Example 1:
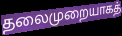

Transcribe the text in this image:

தலைமுறையாகத்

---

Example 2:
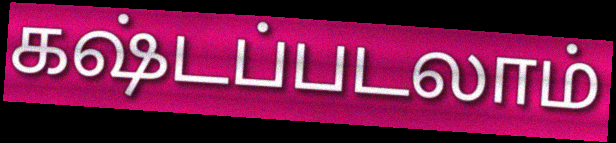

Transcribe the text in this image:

கஷ்டப்படலாம்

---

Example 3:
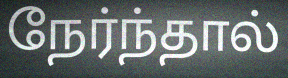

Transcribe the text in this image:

நேர்ந்தால்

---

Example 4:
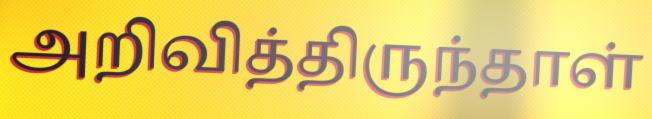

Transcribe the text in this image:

அறிவித்திருந்தாள்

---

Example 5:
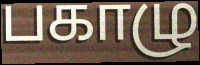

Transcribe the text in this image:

பகாழு